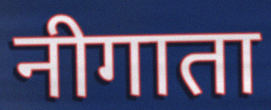
नीगाता